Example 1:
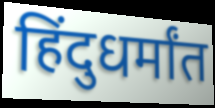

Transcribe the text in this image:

हिंदुधर्मांत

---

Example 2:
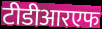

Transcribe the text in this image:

टीडीआरएफ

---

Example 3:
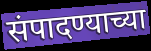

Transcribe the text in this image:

संपादण्याच्या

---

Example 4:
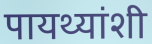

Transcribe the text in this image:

पायथ्यांशी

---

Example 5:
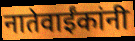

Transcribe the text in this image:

नातेवाईंकांनी